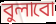
বুলাবো